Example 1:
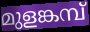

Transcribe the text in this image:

മുളങ്കമ്പ്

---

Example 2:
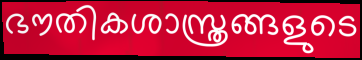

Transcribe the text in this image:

ഭൗതികശാസ്ത്രങ്ങളുടെ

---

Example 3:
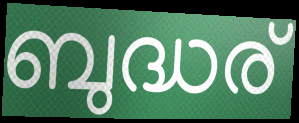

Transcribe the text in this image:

ബുദ്ധര്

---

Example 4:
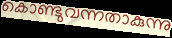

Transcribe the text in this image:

കൊണ്ടുവന്നതാകുന്നു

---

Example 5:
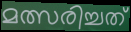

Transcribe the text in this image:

മത്സരിച്ചത്